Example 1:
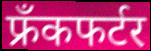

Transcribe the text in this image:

फ्रँकफर्टर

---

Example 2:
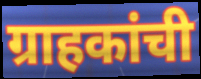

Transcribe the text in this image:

ग्राहकांची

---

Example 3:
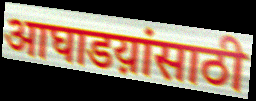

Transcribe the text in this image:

आघाडय़ांसाठी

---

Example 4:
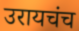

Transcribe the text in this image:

उरायचंच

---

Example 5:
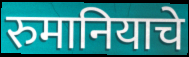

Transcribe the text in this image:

रुमानियाचे